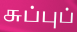
சுப்புப்